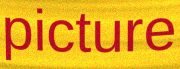
picture